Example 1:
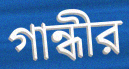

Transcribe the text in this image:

গান্ধীর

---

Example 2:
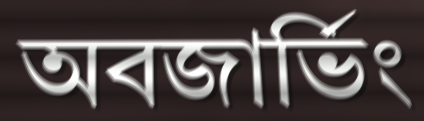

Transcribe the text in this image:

অবজার্ভিং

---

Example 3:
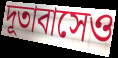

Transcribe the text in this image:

দূতাবাসেও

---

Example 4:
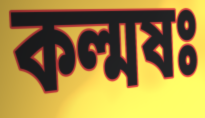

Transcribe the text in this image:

কল্মষঃ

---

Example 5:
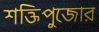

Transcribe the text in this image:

শক্তিপুজোর